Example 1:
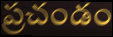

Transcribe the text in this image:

ప్రచండం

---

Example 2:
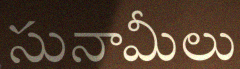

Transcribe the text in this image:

సునామీలు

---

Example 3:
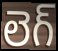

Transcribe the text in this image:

లెగ్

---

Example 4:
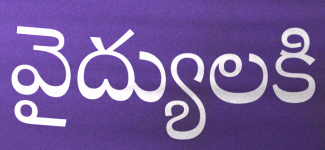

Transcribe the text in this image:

వైద్యులకి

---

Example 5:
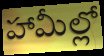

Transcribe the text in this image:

హామీల్లో